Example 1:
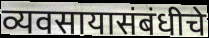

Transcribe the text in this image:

व्यवसायासंबंधीचे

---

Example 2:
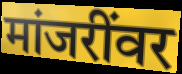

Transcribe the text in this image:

मांजरींवर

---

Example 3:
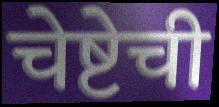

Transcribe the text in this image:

चेष्टेची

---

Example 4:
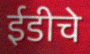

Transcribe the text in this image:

ईडीचे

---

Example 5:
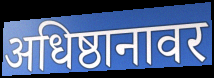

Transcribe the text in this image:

अधिष्ठानावर